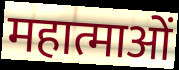
महात्माओं